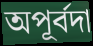
অপূর্বদা